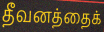
தீவனத்தைக்